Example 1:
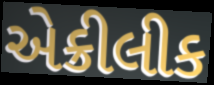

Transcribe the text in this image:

એક્રીલીક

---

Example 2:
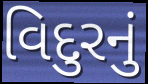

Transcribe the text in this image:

વિદુરનું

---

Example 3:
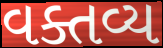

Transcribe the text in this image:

વક્તવ્ય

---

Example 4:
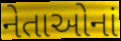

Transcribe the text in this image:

નેતાઓનાં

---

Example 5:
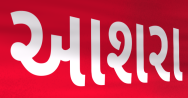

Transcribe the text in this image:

આશરા